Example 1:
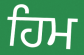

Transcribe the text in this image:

ਹਿਮ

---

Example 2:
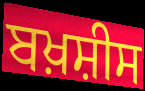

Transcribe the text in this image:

ਬਖ਼ਸ਼ੀਸ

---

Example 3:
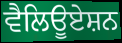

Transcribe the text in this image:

ਵੈਲਿਊਏਸ਼ਨ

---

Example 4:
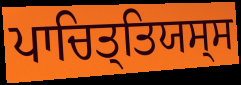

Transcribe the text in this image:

ਪਾਚਿਤ੍ਤਿਯਸ੍ਸ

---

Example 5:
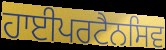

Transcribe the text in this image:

ਹਾਈਪਰਟੈਨਸਿਵ